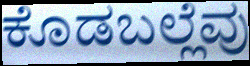
ಕೊಡಬಲ್ಲೆವು